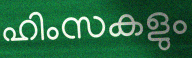
ഹിംസകളും